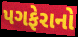
પગફેરાનો